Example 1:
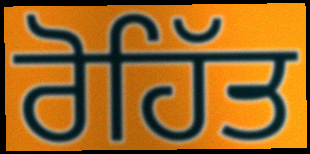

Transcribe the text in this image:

ਰੋਹਿੱਤ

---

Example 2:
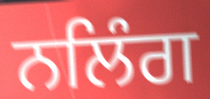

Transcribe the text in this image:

ਨਲਿੰਗ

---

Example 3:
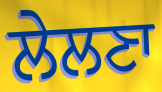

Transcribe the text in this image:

ਲੇਲਣਾ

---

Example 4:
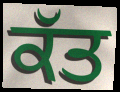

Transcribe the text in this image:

ਕੱਤ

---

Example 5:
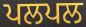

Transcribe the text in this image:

ਪਲਪਲ